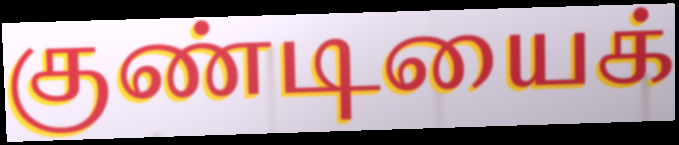
குண்டியைக்